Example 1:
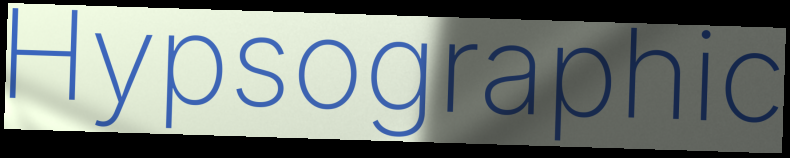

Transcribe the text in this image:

Hypsographic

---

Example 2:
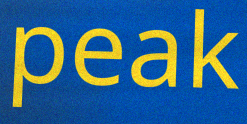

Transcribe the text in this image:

peak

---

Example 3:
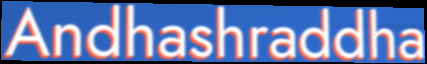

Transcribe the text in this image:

Andhashraddha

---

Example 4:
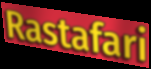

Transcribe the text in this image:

Rastafari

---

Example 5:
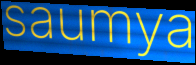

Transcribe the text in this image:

saumya